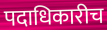
पदाधिकारीच